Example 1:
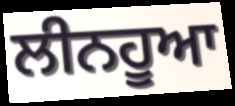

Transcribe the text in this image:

ਲੀਨਹੂਆ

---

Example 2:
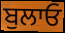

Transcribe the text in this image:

ਬੁਲਾਓ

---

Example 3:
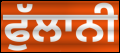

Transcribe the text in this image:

ਫੁੱਲਾਨੀ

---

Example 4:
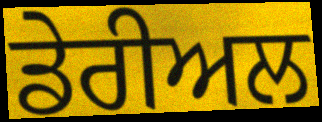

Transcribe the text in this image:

ਡੇਰੀਅਲ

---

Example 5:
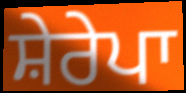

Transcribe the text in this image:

ਸ਼ੇਰੇਪਾ